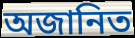
অজানিত